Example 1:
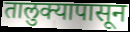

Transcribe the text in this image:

तालुक्यापासून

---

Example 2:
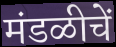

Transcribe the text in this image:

मंडळीचें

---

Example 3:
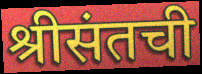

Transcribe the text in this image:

श्रीसंतची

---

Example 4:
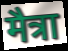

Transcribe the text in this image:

मैत्रा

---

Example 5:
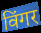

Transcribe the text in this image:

विंगर